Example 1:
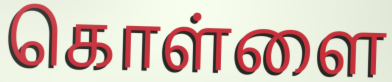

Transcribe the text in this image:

கொள்ளை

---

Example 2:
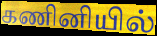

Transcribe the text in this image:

கணினியில்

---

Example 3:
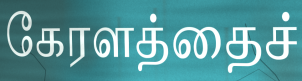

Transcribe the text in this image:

கேரளத்தைச்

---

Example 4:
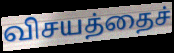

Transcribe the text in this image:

விசயத்தைச்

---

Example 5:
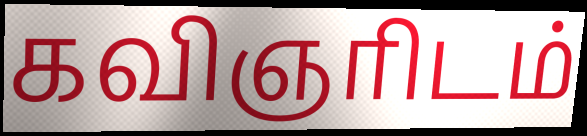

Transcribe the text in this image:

கவிஞரிடம்